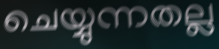
ചെയ്യുന്നതല്ല